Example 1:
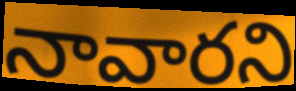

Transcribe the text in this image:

నావారని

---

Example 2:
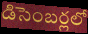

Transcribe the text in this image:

డిసెంబర్లలో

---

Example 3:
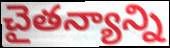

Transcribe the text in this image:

చైతన్యాన్ని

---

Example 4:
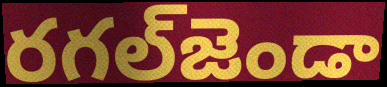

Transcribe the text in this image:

రగల్‌జెండా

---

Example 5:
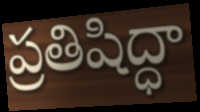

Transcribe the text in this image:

ప్రతిషిద్ధా